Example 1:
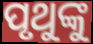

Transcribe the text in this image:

ପୃଥୁଙ୍କୁ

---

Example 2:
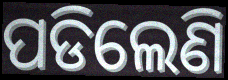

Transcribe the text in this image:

ପଡିଲେଣି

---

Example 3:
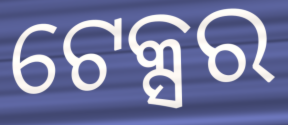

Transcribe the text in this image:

ଟେକ୍ସର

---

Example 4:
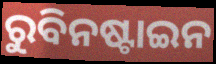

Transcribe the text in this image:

ରୁବିନଷ୍ଟାଇନ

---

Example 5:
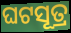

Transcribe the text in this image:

ଘଟସୂତ୍ର